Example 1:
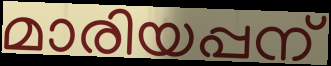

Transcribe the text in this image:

മാരിയപ്പന്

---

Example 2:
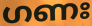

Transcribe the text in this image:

ഗണഃ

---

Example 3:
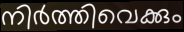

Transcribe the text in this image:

നിർത്തിവെക്കും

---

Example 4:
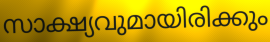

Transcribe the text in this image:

സാക്ഷ്യവുമായിരിക്കും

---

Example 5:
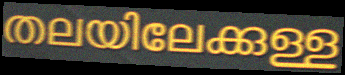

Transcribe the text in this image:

തലയിലേക്കുള്ള